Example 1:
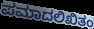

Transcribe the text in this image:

ಪಮಾದಲಿಖಿತಂ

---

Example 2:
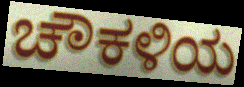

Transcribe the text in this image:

ಚೌಕಳಿಯ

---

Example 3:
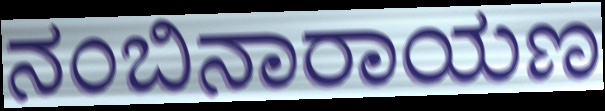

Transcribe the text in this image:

ನಂಬಿನಾರಾಯಣ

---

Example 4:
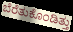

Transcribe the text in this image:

ಬೆರೆತುಕೊಂಡಿತ್ತು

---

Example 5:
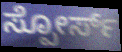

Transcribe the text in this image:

ಸ್ಪೋರ್ಸ್